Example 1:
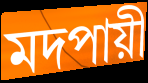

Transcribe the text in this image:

মদপায়ী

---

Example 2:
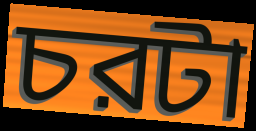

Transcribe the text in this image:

চরটা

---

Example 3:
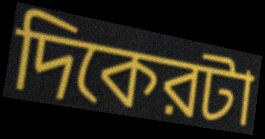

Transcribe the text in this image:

দিকেরটা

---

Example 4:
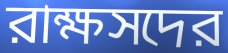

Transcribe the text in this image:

রাক্ষসদের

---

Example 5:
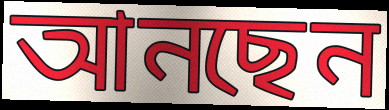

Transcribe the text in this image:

আনছেন